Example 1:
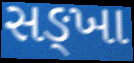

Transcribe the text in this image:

સઙ્ખા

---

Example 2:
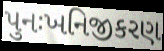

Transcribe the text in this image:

પુનઃખનિજીકરણ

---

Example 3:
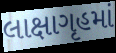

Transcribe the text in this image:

લાક્ષાગૃહમાં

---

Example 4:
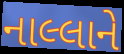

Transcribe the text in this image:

નાલ્લાને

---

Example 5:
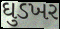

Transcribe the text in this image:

ઘુડખર